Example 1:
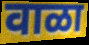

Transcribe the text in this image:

वाळा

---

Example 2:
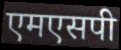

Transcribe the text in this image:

एमएसपी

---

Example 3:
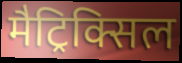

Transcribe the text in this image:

मैट्रिक्सिल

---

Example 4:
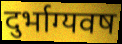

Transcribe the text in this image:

दुर्भाग्यवष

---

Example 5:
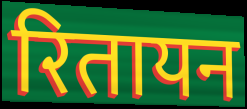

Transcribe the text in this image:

रितायन